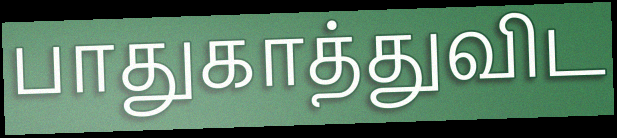
பாதுகாத்துவிட